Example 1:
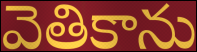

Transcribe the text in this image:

వెతికాను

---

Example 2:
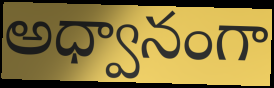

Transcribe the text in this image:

అధ్వానంగా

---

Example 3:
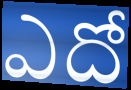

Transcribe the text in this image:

ఎదో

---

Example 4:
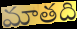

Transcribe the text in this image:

మాతది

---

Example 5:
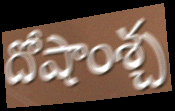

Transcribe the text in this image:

దోషాంశ్చ